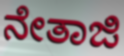
ನೇತಾಜಿ